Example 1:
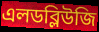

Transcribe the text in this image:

এলডব্লিউজি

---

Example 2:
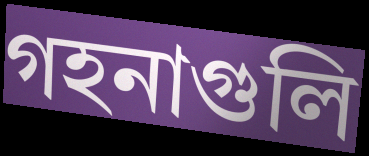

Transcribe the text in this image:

গহনাগুলি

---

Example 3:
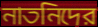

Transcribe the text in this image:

নাতনিদের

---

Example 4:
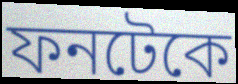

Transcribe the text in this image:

ফনটেকে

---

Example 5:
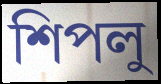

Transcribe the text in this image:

শিপলু